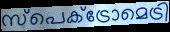
സ്പെക്ട്രോമെട്രി